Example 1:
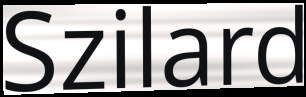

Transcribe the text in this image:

Szilard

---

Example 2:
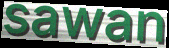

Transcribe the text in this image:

sawan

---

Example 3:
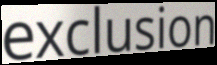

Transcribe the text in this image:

exclusion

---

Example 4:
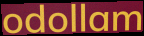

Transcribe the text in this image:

odollam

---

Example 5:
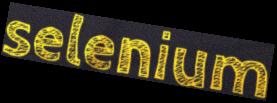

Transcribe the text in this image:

selenium